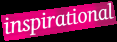
inspirational